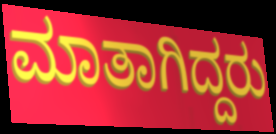
ಮಾತಾಗಿದ್ದರು